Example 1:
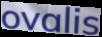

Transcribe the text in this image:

ovalis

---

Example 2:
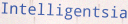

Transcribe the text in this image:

Intelligentsia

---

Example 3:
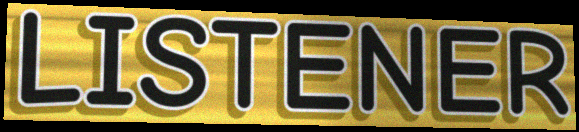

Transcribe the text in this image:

LISTENER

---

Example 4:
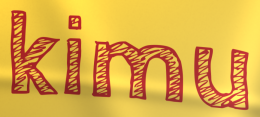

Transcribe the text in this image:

kimu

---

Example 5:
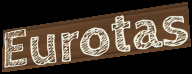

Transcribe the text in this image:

Eurotas